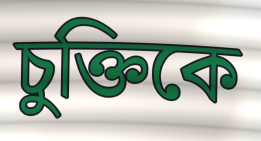
চুক্তিকে